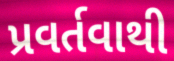
પ્રવર્તવાથી